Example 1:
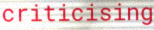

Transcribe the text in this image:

criticising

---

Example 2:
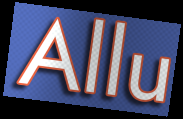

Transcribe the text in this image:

Allu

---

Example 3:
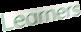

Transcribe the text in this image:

Learners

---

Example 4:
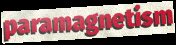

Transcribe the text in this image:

paramagnetism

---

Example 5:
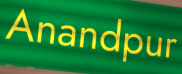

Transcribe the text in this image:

Anandpur